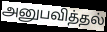
அனுபவித்தல்